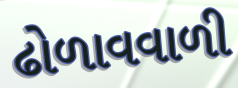
ઢોળાવવાળી